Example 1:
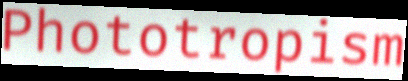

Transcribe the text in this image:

Phototropism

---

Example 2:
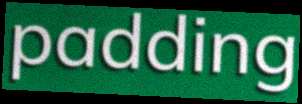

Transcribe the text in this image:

padding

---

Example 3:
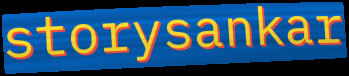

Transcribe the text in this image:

storysankar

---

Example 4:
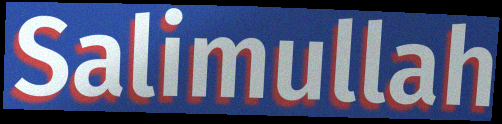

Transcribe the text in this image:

Salimullah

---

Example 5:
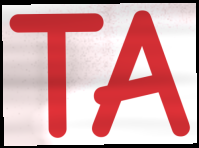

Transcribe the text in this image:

TA